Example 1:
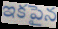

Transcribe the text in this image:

ఇకపైన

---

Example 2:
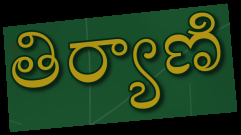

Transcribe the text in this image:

తిర్యాణి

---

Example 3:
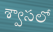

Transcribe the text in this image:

శ్వాసలో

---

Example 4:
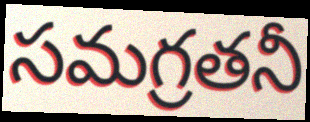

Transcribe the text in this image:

సమగ్రతనీ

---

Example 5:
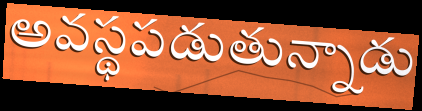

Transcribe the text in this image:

అవస్థపడుతున్నాడు